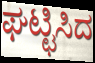
ಘಟ್ಟಿಸಿದ